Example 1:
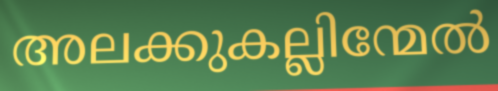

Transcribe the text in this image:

അലക്കുകല്ലിന്മേൽ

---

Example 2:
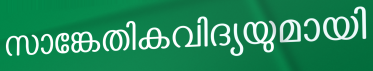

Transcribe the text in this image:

സാങ്കേതികവിദ്യയുമായി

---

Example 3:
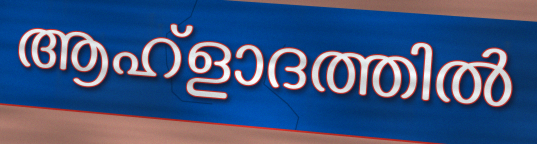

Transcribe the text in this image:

ആഹ്ളാദത്തിൽ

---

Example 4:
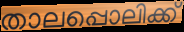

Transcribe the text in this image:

താലപ്പൊലിക്ക്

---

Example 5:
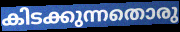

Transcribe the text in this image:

കിടക്കുന്നതൊരു